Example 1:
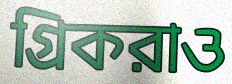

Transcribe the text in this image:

গ্রিকরাও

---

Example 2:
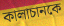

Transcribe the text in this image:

কালাচানকে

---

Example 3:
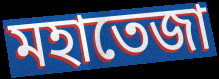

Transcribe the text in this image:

মহাতেজা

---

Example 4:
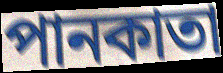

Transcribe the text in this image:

পানকাতা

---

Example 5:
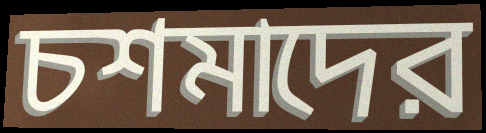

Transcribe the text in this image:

চশমাদের